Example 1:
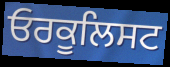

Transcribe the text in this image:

ਓਰਕੂਲਿਸਟ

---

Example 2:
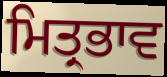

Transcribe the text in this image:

ਮਿਤ੍ਰਭਾਵ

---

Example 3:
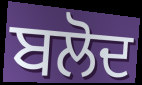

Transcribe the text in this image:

ਬਲੋਦ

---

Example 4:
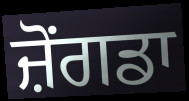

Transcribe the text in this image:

ਜ਼ੋਂਗਡਾ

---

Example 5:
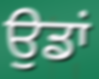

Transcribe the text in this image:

ਉਡਾਂ